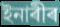
ইনাৰীৰ